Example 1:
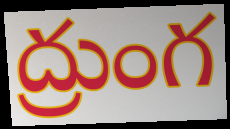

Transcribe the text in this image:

ద్రుంగ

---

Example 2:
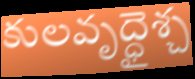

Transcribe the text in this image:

కులవృద్ధైశ్చ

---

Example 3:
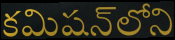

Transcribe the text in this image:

కమిషన్‌లోని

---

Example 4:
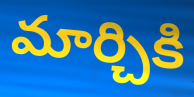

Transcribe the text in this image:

మార్చికి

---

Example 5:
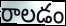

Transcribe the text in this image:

రాలడం